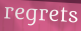
regrets